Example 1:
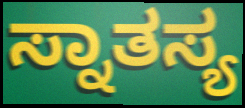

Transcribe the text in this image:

ಸ್ನಾತಸ್ಯ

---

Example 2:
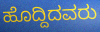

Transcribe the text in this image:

ಹೊದ್ದಿದವರು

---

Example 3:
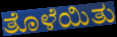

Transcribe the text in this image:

ತೊಳೆಯಿತು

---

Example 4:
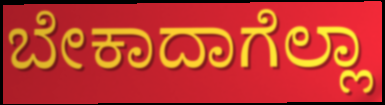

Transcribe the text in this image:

ಬೇಕಾದಾಗೆಲ್ಲಾ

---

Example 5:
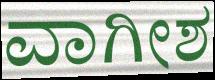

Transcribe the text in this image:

ವಾಗೀಶ